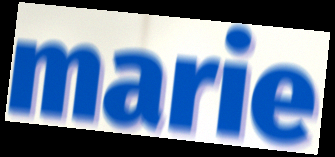
marie